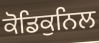
ਕੋਡਿਕੁਨਿਲ